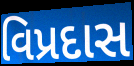
વિપ્રદાસ